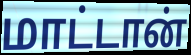
மாட்டான்